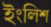
ইংলিশ